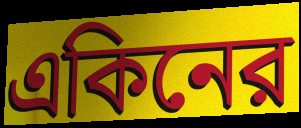
একিনের